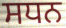
ਸਧਨ